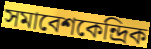
সমাবেশকেন্দ্রিক